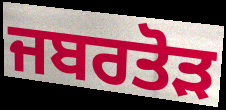
ਜਬਰਤੋੜ